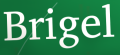
Brigel